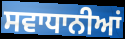
ਸਵਾਧਾਨੀਆਂ